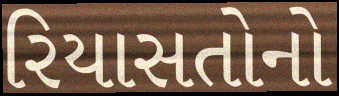
રિયાસતોનો